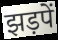
झड़पें